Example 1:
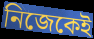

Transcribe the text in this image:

নিজেকেই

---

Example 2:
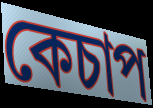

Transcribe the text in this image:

কেচাপ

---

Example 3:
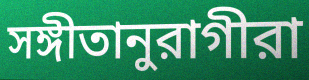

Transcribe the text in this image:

সঙ্গীতানুরাগীরা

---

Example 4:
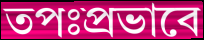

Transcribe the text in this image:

তপঃপ্রভাবে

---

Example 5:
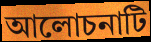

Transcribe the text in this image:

আলোচনাটি